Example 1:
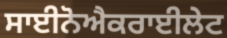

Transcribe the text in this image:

ਸਾਈਨੋਐਕਰਾਈਲੇਟ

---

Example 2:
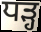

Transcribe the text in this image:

ਧੜ੍ਹ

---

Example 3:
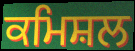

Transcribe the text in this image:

ਕਮਿਸ਼ਲ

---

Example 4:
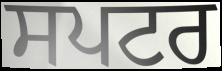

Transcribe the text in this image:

ਸਪਟਰ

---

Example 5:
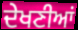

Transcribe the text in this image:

ਦੇਖਣੀਆਂ